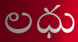
లధు